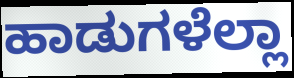
ಹಾಡುಗಳೆಲ್ಲಾ